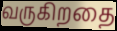
வருகிறதை